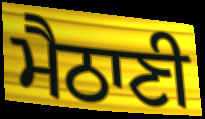
ਮੈਠਾਣੀ